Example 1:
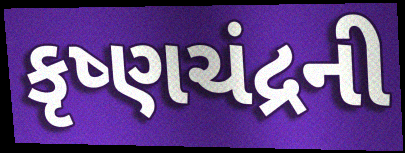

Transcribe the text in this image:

કૃષ્ણચંદ્રની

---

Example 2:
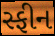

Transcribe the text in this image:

સ્ફીન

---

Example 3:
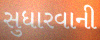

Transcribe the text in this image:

સુધારવાની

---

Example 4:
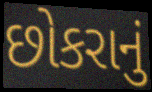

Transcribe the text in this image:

છોકરાનું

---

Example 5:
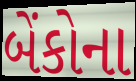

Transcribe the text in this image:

બેંકોના